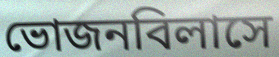
ভোজনবিলাসে